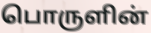
பொருளின்